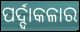
ପର୍ଦ୍ଦାକଳାର